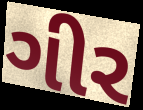
ગીર